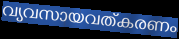
വ്യവസായവത്കരണം